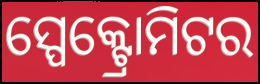
ସ୍ପେକ୍ଟ୍ରୋମିଟର